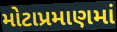
મોટાપ્રમાણમાં